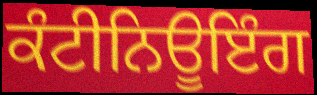
ਕੰਟੀਨਿਊਇੰਗ